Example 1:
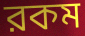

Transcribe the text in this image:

রকম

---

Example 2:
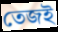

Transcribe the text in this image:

তেজই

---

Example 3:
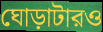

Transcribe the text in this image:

ঘোড়াটারও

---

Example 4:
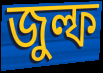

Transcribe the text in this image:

জুল্ফ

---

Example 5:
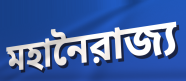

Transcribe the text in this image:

মহানৈরাজ্য